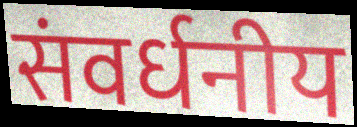
संवर्धनीय